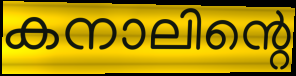
കനാലിന്റെ